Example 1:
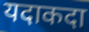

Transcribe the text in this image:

यदाकदा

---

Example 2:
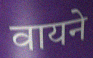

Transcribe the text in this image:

वायने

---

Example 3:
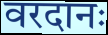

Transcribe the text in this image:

वरदानः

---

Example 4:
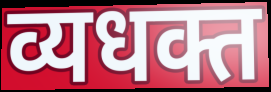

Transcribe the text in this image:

व्यधक्त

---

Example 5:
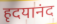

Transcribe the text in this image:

हृदयानंद